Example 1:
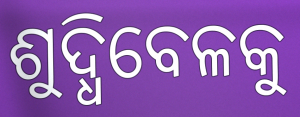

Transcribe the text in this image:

ଶୁଦ୍ଧିବେଳକୁ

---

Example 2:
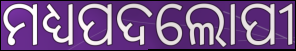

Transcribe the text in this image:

ମଧ୍ଯପଦଲୋପୀ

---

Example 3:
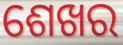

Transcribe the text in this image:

ଶେଖର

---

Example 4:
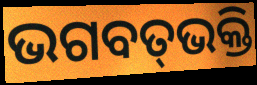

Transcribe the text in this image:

ଭଗବତ୍‌ଭକ୍ତି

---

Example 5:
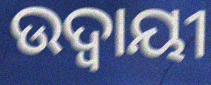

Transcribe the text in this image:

ଉଦ୍ବାୟୀ